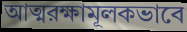
আত্মরক্ষামূলকভাবে